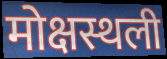
मोक्षस्थली